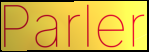
Parler